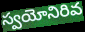
స్వయోనిరివ